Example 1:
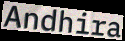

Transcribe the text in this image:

Andhira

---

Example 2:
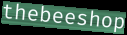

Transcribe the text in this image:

thebeeshop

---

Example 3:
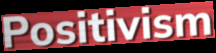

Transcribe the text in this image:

Positivism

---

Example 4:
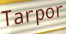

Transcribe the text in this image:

Tarpor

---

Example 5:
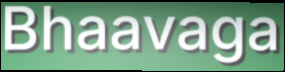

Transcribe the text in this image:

Bhaavaga